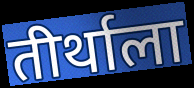
तीर्थाला